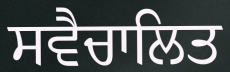
ਸਵੈਚਾਲਿਤ